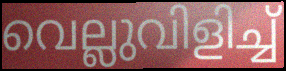
വെല്ലുവിളിച്ച്